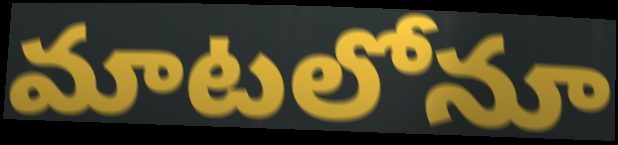
మాటలోనూ